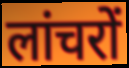
लांचरों